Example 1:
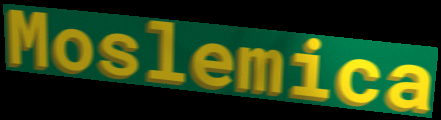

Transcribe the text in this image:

Moslemica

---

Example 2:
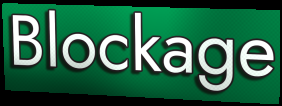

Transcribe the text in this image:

Blockage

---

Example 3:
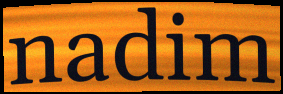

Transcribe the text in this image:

nadim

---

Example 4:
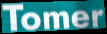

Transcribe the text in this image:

Tomer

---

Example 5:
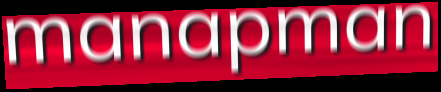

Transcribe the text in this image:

manapman